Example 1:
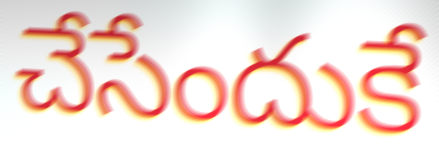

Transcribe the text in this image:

చేసేందుకే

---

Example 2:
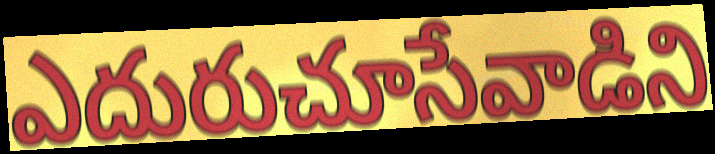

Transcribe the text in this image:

ఎదురుచూసేవాడిని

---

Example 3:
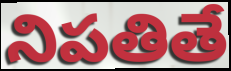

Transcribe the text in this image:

నిపతితే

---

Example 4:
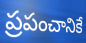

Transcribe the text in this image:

ప్రపంచానికే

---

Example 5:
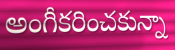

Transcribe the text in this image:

అంగీకరించకున్నా